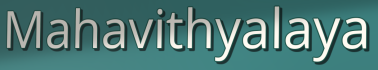
Mahavithyalaya